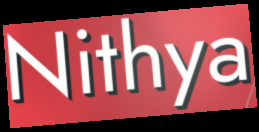
Nithya